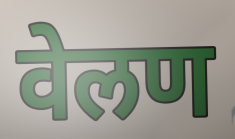
वेलण